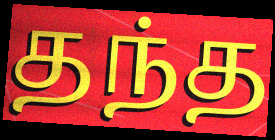
தந்த